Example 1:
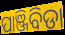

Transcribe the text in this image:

ପାଞ୍ଜିବିଡା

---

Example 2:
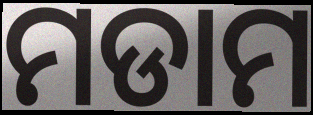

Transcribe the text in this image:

ମଡାମ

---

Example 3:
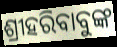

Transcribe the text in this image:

ଶ୍ରୀହରିବାବୁଙ୍କ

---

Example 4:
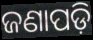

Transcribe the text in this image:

ଜଣାପଡ଼ି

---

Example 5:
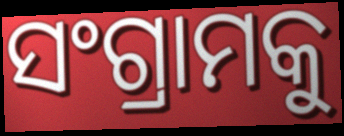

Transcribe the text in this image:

ସଂଗ୍ରାମକୁ